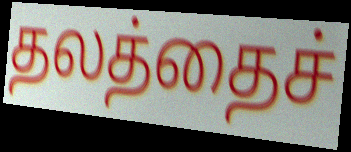
தலத்தைச்